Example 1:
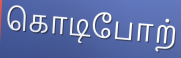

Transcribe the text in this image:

கொடிபோற்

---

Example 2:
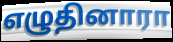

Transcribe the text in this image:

எழுதினாரா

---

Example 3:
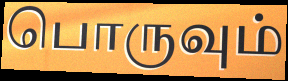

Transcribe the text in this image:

பொருவும்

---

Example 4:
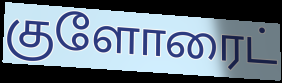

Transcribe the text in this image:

குளோரைட்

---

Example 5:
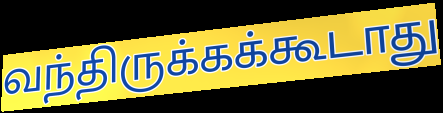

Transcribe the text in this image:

வந்திருக்கக்கூடாது